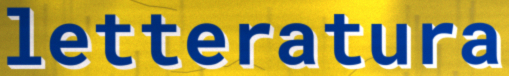
letteratura